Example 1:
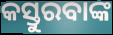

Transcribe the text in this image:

କସ୍ତୁରବାଙ୍କ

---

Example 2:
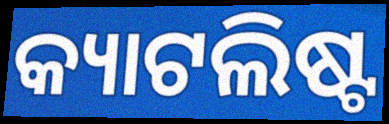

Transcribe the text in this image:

କ୍ୟାଟଲିଷ୍ଟ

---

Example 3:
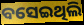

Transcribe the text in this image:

ବସେଇଥିଲି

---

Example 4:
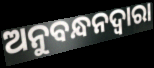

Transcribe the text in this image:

ଅନୁବନ୍ଧନଦ୍ୱାରା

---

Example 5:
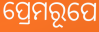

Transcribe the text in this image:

ପ୍ରେମରୂପେ